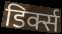
डिर्क्स